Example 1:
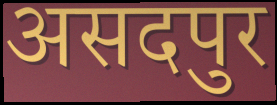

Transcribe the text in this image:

असदपुर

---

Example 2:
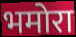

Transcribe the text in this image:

भमोरा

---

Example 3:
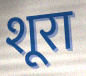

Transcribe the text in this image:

शूरा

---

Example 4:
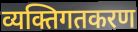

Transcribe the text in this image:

व्यक्तिगतकरण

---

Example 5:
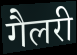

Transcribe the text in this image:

गैलरी